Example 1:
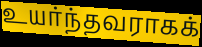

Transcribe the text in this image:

உயர்ந்தவராகக்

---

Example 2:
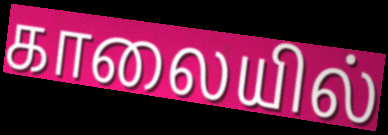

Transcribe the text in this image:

காலையில்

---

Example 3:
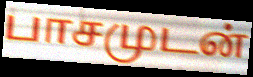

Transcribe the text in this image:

பாசமுடன்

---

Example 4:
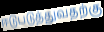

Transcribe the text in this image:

ஈடுபடுத்துவதற்கு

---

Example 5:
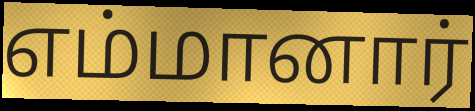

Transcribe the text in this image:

எம்மானார்